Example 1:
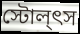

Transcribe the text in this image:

স্টোল্ৎস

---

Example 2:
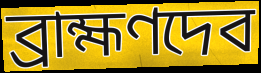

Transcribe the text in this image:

ব্রাহ্মণদেব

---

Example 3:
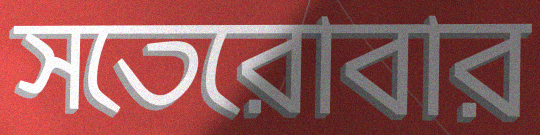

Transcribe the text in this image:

সতেরোবার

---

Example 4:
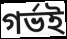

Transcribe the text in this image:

গর্ভই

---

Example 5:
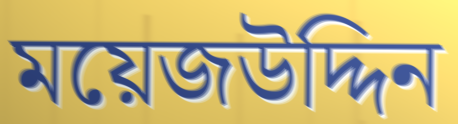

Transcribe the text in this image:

ময়েজউদ্দিন